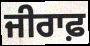
ਜੀਰਾਫ਼